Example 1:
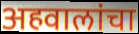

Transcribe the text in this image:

अहवालांचा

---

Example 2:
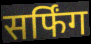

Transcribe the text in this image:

सर्फिंग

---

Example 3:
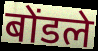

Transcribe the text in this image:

बोंडले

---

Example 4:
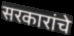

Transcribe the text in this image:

सरकारांचे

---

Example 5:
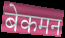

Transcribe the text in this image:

बेकमन